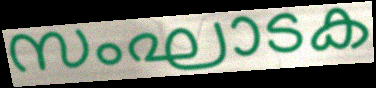
സംഘാടക